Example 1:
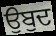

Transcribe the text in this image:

ਉਬੁਦ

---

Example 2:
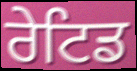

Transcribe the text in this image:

ਰੇਟਿਡ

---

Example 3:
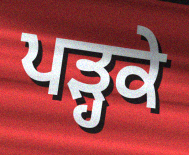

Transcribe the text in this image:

ਪੜ੍ਹਕੇ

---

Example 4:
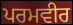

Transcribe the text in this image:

ਪਰਮਵੀਰ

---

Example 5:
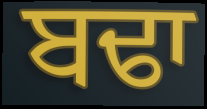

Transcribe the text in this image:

ਬਢਾ